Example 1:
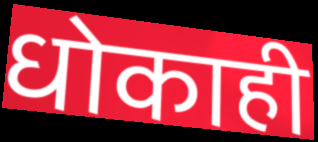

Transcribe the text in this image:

धोकाही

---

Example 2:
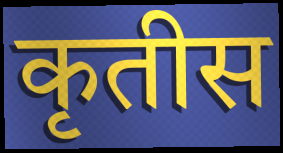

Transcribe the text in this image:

कृतीस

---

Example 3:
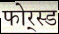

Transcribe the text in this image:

फोर्स्ड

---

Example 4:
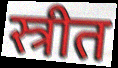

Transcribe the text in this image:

स्त्रीत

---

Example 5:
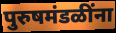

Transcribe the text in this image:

पुरुषमंडळींना